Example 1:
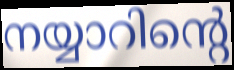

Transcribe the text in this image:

നയ്യാറിന്റെ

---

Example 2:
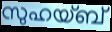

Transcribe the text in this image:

സുഹയ്ബ്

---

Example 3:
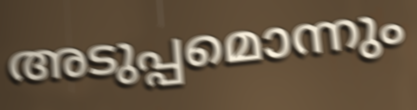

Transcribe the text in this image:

അടുപ്പമൊന്നും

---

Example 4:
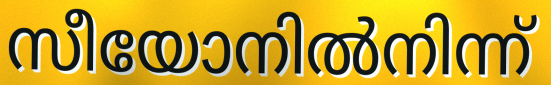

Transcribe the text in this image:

സീയോനിൽനിന്ന്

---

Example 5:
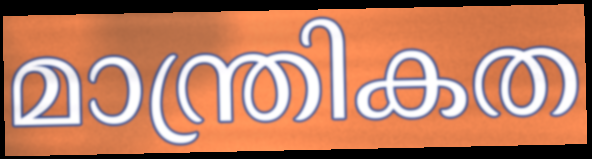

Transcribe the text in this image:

മാന്ത്രികത